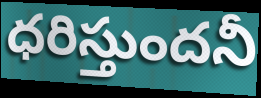
ధరిస్తుందనీ